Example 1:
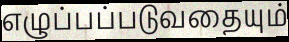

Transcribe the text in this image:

எழுப்பப்படுவதையும்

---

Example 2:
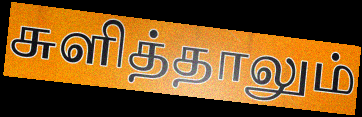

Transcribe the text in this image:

சுளித்தாலும்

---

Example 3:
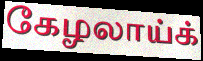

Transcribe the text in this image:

கேழலாய்க்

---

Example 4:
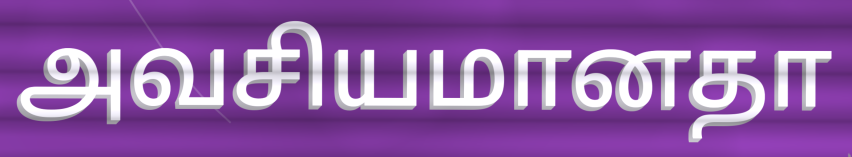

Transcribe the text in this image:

அவசியமானதா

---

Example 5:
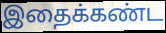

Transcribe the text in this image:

இதைக்கண்ட